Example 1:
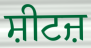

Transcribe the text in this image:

ਸ਼ੀਟਜ਼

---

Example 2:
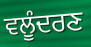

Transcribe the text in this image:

ਵਲੂੰਦਰਣ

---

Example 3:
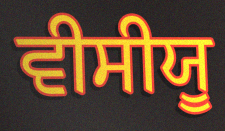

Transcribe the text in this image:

ਵੀਸੀਯੂ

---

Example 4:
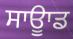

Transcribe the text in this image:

ਸਾਊਾਡ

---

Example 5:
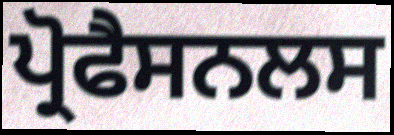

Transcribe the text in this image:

ਪ੍ਰੋਫੈਸਨਲਸ